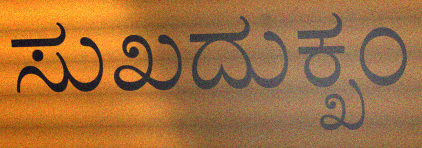
ಸುಖದುಕ್ಖಂ